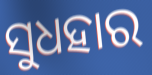
ସୁଧହାର